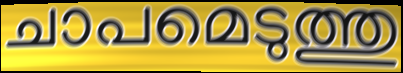
ചാപമെടുത്തു